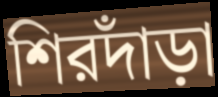
শিরদাঁড়া